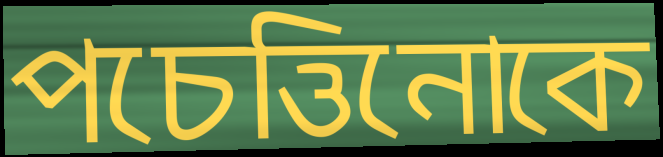
পচেত্তিনোকে